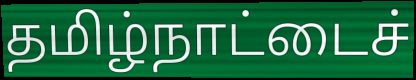
தமிழ்நாட்டைச்